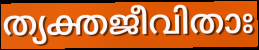
ത്യക്തജീവിതാഃ